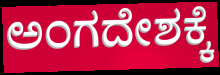
ಅಂಗದೇಶಕ್ಕೆ